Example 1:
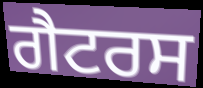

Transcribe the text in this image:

ਗੈਟਰਸ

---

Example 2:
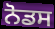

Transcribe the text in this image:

ਨੋਡਸ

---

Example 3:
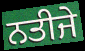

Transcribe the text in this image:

ਨਤੀਜੇ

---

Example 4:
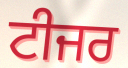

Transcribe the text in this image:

ਟੀਜਰ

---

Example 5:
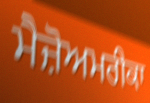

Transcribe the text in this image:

ਮੈਜ਼ੋਅਮਰੀਕਾ